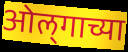
ओल्गाच्या